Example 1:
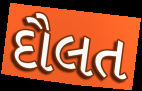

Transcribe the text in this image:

દૌલત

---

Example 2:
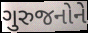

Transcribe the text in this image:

ગુરુજનોને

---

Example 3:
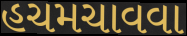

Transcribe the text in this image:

હચમચાવવા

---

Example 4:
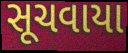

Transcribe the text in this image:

સૂચવાયા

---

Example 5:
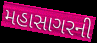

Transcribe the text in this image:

મહાસાગરની